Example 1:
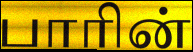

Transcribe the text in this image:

பாரின்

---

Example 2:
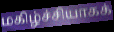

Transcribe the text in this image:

மகிழ்ச்சியாகக்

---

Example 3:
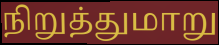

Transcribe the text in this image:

நிறுத்துமாறு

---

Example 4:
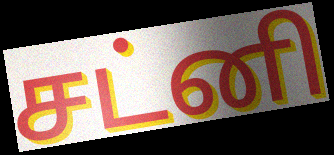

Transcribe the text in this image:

சட்னி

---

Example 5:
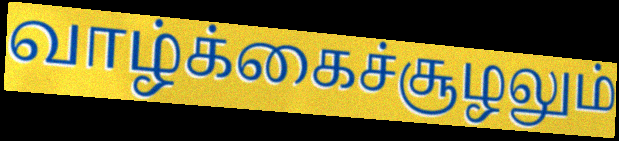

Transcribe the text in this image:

வாழ்க்கைச்சூழலும்